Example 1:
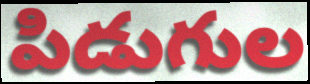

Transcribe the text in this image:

పిడుగుల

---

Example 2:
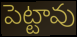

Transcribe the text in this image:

పెట్టావు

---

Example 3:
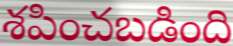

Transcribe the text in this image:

శపించబడింది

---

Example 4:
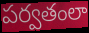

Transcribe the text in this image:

పర్వతంలా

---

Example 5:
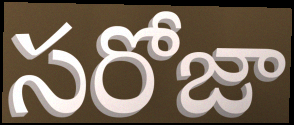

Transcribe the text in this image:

సరోజా